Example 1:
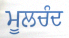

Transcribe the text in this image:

ਮੂਲਚੰਦ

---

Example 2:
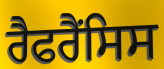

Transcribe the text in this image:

ਰੈਫਰੈਂਸਿਸ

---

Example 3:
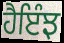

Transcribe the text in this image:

ਹੈਇੰਝ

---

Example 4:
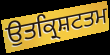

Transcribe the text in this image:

ਉਤਕ੍ਰਿਸ਼ਟਤਮ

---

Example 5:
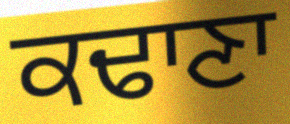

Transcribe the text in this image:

ਕਢਾਣਾ